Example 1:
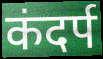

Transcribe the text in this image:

कंदर्प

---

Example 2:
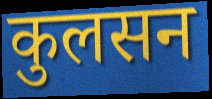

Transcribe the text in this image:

कुलसन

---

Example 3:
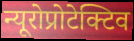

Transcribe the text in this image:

न्यूरोप्रोटेक्टिव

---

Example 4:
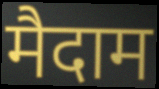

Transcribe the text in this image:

मैदाम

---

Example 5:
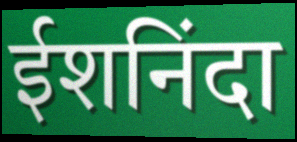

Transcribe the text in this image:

ईशनिंदा